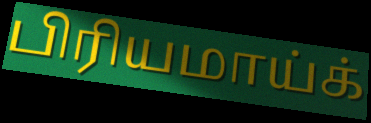
பிரியமாய்க்